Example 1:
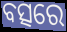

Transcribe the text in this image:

ବତ୍ସରେ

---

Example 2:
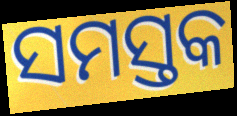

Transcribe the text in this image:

ସମସ୍ତକ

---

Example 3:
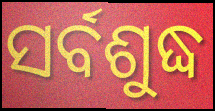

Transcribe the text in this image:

ସର୍ବଶୁଦ୍ଧ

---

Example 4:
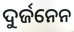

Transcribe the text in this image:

ଦୁର୍ଜନେନ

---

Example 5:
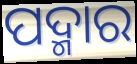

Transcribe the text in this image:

ପଦ୍ମାର